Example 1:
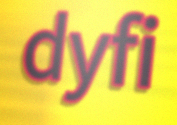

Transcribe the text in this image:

dyfi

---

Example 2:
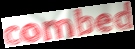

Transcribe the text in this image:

combed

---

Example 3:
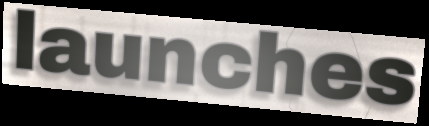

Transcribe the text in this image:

launches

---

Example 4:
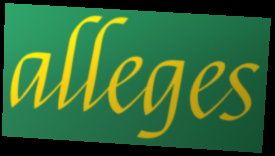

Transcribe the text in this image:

alleges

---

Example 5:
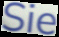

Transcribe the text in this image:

Sie